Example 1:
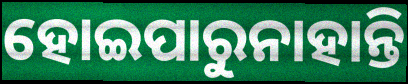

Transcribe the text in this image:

ହୋଇପାରୁନାହାନ୍ତି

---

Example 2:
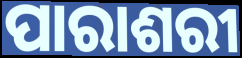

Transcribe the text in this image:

ପାରାଶରୀ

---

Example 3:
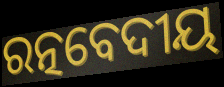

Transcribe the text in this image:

ରତ୍ନବେଦୀୟ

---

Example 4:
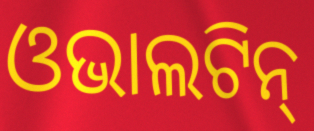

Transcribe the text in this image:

ଓଭାଲଟିନ୍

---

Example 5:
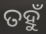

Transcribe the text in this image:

ତହୁଁ